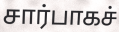
சார்பாகச்